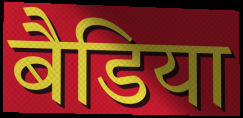
बैडिया